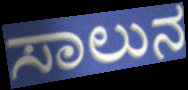
ಸಾಲುನ